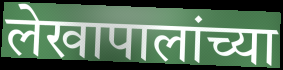
लेखापालांच्या